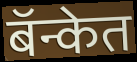
बॅन्केत